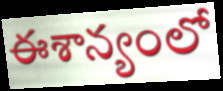
ఈశాన్యంలో